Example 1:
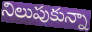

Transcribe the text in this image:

నిలుపుకున్నా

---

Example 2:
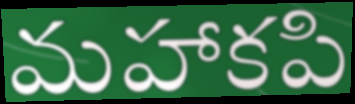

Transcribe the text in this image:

మహాకపి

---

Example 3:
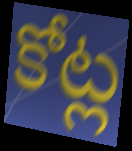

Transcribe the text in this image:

కోట్ల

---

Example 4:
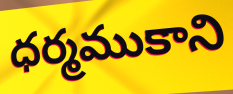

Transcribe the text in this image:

ధర్మముకాని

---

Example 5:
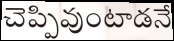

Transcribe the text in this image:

చెప్పివుంటాడనే